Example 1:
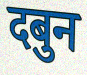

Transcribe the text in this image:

दबुन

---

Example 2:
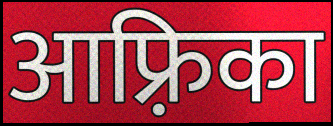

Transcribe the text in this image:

आफ़्रिका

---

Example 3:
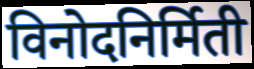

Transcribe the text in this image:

विनोदनिर्मिती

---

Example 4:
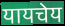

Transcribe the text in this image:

यायचेय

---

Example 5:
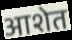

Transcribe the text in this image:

आशेत